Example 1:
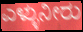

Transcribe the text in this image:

ಎಳ್ಳುನೀರು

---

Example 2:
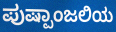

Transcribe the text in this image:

ಪುಷ್ಪಾಂಜಲಿಯ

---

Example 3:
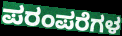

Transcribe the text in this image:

ಪರಂಪರೆಗಳ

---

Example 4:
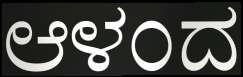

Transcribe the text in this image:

ಆಳಂದ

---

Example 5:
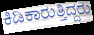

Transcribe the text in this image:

ಕಿಡಿಕಾರುತ್ತಿದ್ದರು